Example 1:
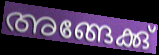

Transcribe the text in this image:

അങ്ങേക്കു്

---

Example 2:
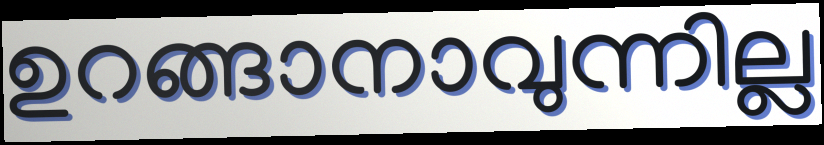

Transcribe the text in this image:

ഉറങ്ങാനാവുന്നില്ല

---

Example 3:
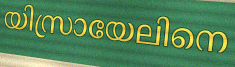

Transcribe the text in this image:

യിസ്രായേലിനെ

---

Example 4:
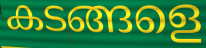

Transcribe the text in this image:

കടങ്ങളെ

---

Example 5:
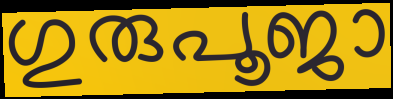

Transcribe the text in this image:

ഗുരുപൂജാ